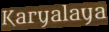
Karyalaya